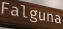
Falguna